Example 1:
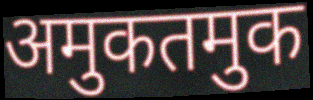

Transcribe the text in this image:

अमुकतमुक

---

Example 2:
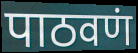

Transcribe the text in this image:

पाठवणं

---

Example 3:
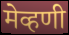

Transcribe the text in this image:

मेव्हणी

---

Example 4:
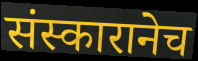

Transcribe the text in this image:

संस्कारानेच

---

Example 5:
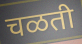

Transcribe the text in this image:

चळती